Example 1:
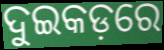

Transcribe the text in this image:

ଦୁଇକଡ଼ରେ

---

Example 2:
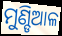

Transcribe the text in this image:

ମୁଣ୍ଡିଆଳ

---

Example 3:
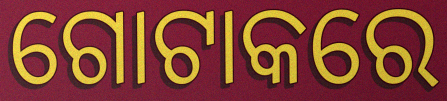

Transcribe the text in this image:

ଗୋଟାକରେ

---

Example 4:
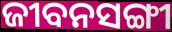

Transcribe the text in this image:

ଜୀବନସଙ୍ଗୀ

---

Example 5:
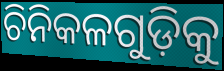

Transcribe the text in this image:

ଚିନିକଳଗୁଡ଼ିକୁ